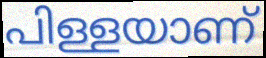
പിള്ളയാണ്